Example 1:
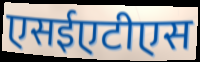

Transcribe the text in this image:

एसईएटीएस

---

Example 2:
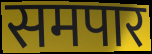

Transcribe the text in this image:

समपार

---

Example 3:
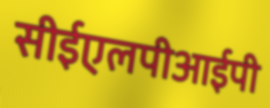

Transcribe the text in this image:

सीईएलपीआईपी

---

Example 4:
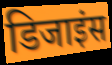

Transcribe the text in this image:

डिजाइंस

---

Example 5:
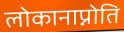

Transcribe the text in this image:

लोकानाप्नोति